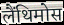
लैंथिमोस